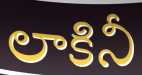
లాకినీ